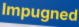
Impugned